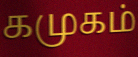
கமுகம்